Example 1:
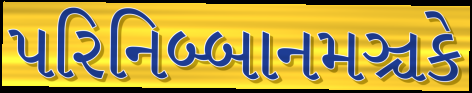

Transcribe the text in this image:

પરિનિબ્બાનમઞ્ચકે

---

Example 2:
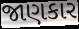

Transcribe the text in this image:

જાણકાર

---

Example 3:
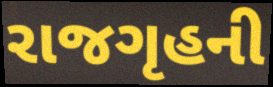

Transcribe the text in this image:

રાજગૃહની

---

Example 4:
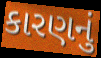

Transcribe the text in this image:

કારણનું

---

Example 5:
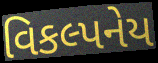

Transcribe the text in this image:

વિકલ્પનેય